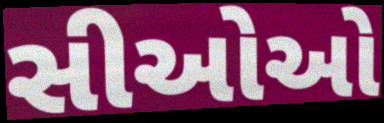
સીઓઓ